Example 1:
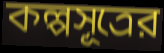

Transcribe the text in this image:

কল্পসূত্রের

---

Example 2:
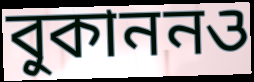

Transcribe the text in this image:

বুকাননও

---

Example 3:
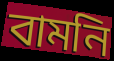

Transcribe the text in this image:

বামনি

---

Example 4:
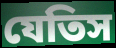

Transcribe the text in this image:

যেতিস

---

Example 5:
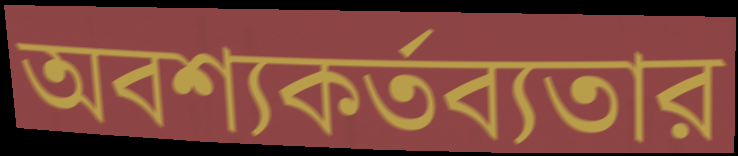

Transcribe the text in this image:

অবশ্যকর্তব্যতার